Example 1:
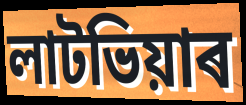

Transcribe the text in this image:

লাটভিয়াৰ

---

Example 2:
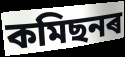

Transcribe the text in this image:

কমিছনৰ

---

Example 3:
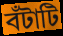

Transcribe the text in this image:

বঁটাটি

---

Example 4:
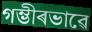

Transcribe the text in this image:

গম্ভীৰভাৱে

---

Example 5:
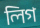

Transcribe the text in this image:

লিগ